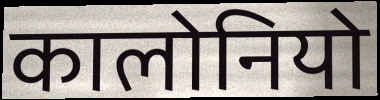
कालोनियो